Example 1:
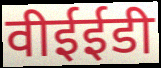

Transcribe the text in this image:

वीईईडी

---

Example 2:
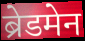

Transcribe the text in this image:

ब्रेडमेन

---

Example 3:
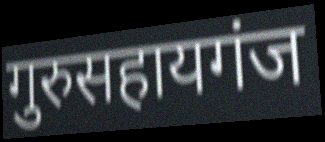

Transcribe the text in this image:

गुरुसहायगंज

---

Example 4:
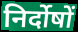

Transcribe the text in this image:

निर्दोषों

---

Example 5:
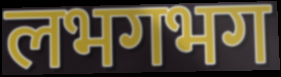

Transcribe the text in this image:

लभगभग